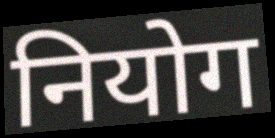
नियोग